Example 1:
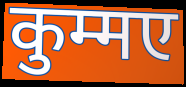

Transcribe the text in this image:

कुम्मए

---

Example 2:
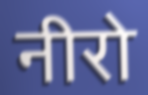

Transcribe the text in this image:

नीरो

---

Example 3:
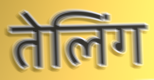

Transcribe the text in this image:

तेलिंग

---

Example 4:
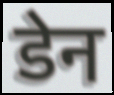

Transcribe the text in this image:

डेन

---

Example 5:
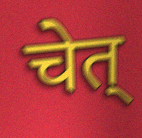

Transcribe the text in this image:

चेत्